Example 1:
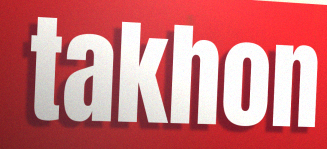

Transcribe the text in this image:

takhon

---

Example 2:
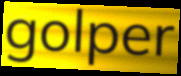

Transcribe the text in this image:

golper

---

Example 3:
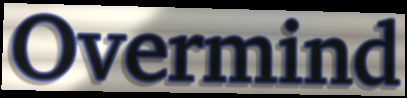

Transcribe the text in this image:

Overmind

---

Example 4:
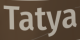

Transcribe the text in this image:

Tatya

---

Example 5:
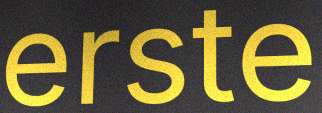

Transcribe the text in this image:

erste